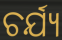
ଚର୍ଯ୍ୟ